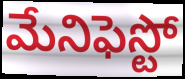
మేనిఫెస్టో